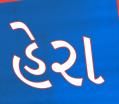
હેરા